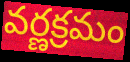
వర్ణక్రమం